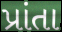
પ્રાંતા